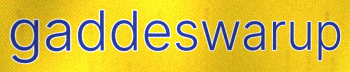
gaddeswarup